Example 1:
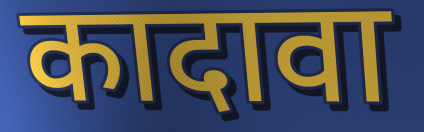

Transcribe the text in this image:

कादावा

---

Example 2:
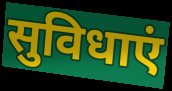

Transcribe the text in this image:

सुविधाएं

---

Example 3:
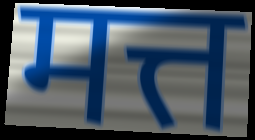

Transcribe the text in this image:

मत्त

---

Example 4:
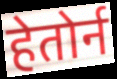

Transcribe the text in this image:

हेतोर्न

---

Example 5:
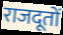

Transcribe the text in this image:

राजदूतों